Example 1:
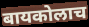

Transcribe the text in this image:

बायकोलाच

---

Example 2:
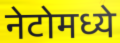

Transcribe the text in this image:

नेटोमध्ये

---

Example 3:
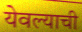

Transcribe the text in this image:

येवल्याची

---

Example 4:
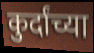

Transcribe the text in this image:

कुर्दांच्या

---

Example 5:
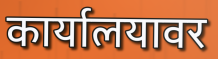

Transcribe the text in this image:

कार्यालयावर